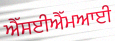
ਐੱਸਈਐੱਮਆਈ